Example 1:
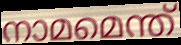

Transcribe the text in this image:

നാമമെന്ത്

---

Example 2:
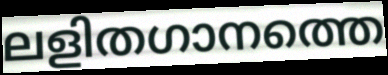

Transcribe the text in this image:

ലളിതഗാനത്തെ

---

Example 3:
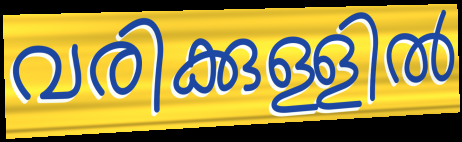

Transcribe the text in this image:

വരിക്കുള്ളിൽ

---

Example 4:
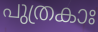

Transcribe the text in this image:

പുത്രകാഃ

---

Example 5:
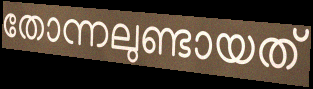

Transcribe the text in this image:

തോന്നലുണ്ടായത്